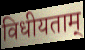
विधीयताम्